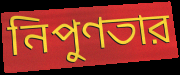
নিপুণতার